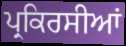
ਪ੍ਰਕਿਰਸੀਆਂ